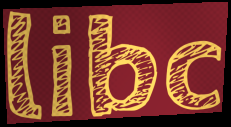
libc